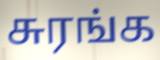
சுரங்க